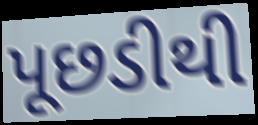
પૂછડીથી